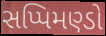
સપ્પિમણ્ડો